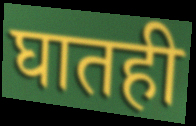
घातही